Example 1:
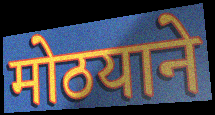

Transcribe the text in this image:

मोठयाने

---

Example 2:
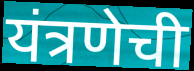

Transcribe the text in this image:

यंत्रणेची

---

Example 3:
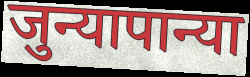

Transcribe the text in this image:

जुन्यापान्या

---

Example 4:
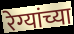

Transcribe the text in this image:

रेग्यांच्या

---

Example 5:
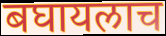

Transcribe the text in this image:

बघायलाच